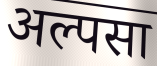
अल्पसा